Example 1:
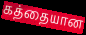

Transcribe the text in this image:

கத்தையான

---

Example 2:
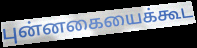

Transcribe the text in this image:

புன்னகையைக்கூட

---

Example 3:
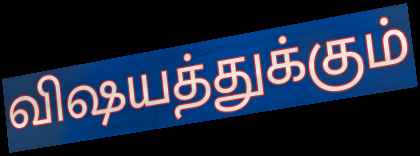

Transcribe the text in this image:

விஷயத்துக்கும்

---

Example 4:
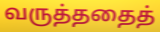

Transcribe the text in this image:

வருத்ததைத்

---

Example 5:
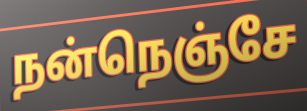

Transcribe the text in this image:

நன்நெஞ்சே